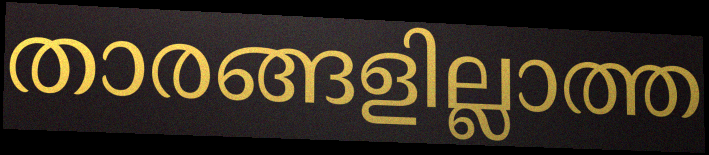
താരങ്ങളില്ലാത്ത